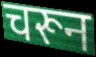
चरून